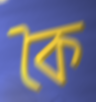
কৈ